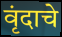
वृंदाचे